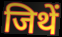
जिथें